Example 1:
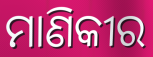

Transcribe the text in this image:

ମାଣିକୀର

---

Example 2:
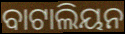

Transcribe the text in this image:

ବାଟାଲିୟନ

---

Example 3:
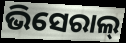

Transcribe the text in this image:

ଭିସେରାଲ୍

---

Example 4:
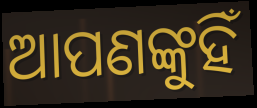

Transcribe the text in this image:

ଆପଣଙ୍କୁହିଁ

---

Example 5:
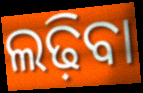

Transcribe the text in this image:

ଲଢ଼ିବା